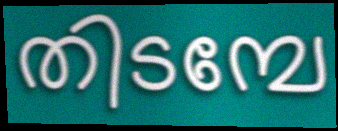
തിടമ്പേ